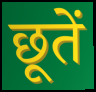
छूतें